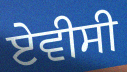
ਏਵੀਸੀ